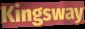
Kingsway